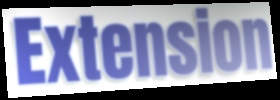
Extension